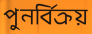
পুনর্বিক্রয়